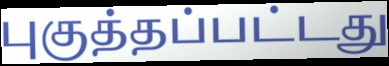
புகுத்தப்பட்டது